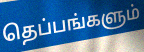
தெப்பங்களும்